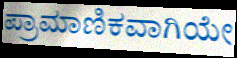
ಪ್ರಾಮಾಣಿಕವಾಗಿಯೇ